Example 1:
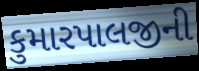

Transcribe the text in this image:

કુમારપાલજીની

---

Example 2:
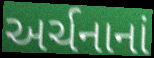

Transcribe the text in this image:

અર્ચનાનાં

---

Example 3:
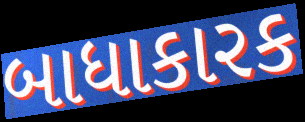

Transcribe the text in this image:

બાધાકારક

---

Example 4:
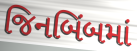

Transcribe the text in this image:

જિનબિંબમાં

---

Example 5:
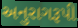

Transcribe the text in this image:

અનુરાગરૂપી